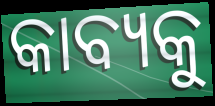
କାବ୍ୟକୁ